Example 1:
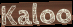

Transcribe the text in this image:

Kaloo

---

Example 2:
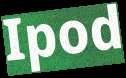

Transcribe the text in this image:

Ipod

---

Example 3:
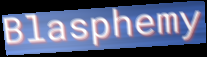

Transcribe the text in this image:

Blasphemy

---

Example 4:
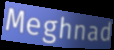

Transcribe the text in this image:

Meghnad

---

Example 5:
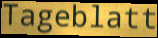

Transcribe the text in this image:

Tageblatt